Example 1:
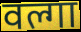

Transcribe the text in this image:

वल्गा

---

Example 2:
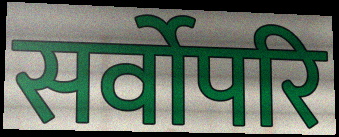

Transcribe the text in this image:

सर्वोपरि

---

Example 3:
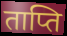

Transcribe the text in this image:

ताप्ति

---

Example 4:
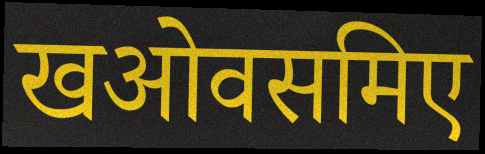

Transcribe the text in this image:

खओवसमिए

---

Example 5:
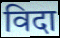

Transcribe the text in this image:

विदा